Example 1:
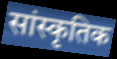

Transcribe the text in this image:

सांस्‍कृतिक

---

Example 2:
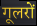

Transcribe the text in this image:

गूलरों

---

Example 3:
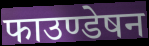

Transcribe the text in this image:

फाउण्डेषन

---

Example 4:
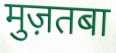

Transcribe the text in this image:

मुज़तबा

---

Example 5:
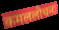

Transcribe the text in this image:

कमललोचनः